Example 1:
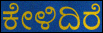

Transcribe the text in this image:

ಕೇಳಿದಿರೆ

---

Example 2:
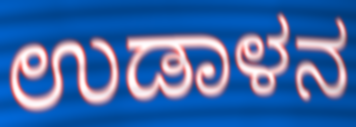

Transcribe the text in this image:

ಉಡಾಳನ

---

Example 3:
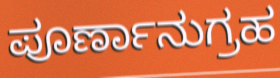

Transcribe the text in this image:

ಪೂರ್ಣಾನುಗ್ರಹ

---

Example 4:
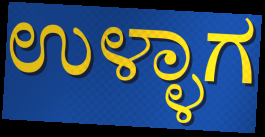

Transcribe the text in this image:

ಉಳ್ಳಾಗ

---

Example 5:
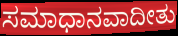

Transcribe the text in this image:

ಸಮಾಧಾನವಾದೀತು